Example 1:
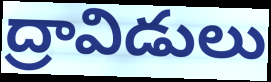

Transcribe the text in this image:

ద్రావిడులు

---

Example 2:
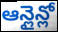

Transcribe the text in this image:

ఆన్లైన్లో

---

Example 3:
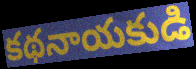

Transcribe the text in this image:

కథనాయకుడి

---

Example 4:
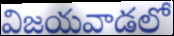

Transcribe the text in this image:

విజయవాడలో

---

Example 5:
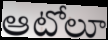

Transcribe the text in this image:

ఆటోలూ